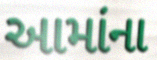
આમાંના